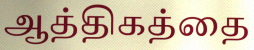
ஆத்திகத்தை